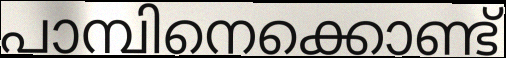
പാമ്പിനെക്കൊണ്ട്